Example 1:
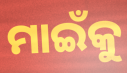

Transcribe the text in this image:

ମାଇଁକୁ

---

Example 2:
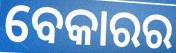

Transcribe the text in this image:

ବେକାରର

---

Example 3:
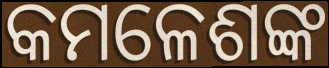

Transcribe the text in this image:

କମଳେଶଙ୍କ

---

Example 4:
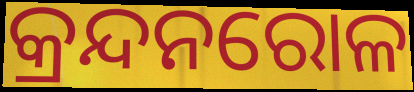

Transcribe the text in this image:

କ୍ରନ୍ଦନରୋଳ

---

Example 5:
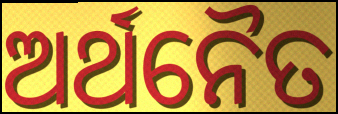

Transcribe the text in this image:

ଅର୍ଥନୈତ